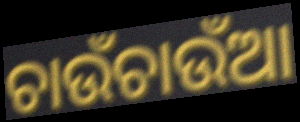
ଚାଉଁଚାଉଁଆ